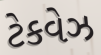
ટેકવેઝ